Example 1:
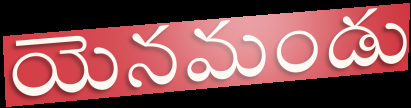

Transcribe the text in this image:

యెనమండు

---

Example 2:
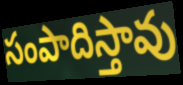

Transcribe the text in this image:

సంపాదిస్తావు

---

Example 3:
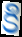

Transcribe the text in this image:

కి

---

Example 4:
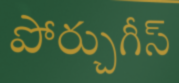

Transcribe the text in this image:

పోర్చుగీస్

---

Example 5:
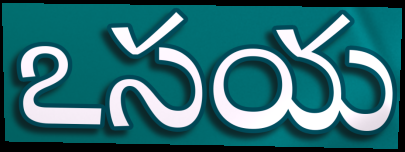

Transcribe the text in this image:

ఽసయ